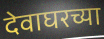
देवाघरच्या